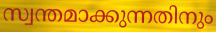
സ്വന്തമാക്കുന്നതിനും